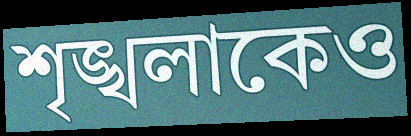
শৃঙ্খলাকেও